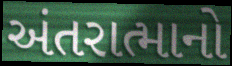
અંતરાત્માનો